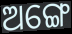
ଅଙ୍ଗେ